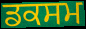
ਡਕਸਮ